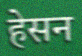
हेसन